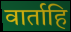
वार्ताहि